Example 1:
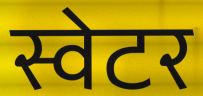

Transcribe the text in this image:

स्वेटर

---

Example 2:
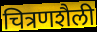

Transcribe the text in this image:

चित्रणशैली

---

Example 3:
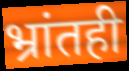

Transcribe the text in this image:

भ्रांतही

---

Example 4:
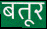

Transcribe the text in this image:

बतूर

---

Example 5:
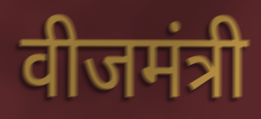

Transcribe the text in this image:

वीजमंत्री